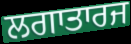
ਲਗਾਤਾਰਜ